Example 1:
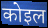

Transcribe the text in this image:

कोइल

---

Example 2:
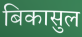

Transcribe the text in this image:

बिकासुल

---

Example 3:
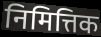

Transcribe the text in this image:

निमित्तिक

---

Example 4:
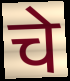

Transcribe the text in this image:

चे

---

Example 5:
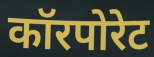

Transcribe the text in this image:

कॉरपोरेट